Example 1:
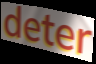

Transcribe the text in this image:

deter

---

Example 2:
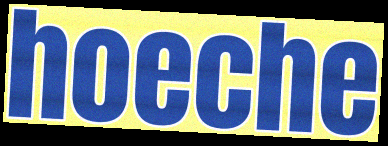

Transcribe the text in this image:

hoeche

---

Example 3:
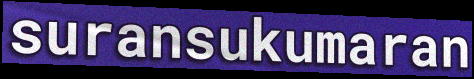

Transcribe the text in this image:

suransukumaran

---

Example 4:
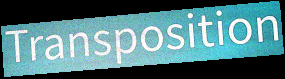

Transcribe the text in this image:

Transposition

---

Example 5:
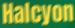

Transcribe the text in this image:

Halcyon